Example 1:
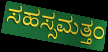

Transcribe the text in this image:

ಸಹಸ್ಸಮತ್ತಂ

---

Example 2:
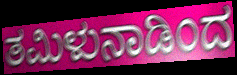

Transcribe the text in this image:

ತಮಿಳುನಾಡಿಂದ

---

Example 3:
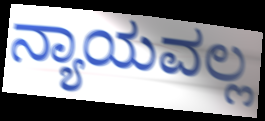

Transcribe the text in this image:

ನ್ಯಾಯವಲ್ಲ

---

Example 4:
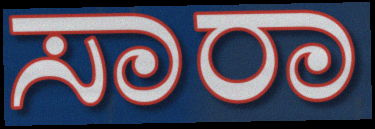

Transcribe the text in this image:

ಸಾರಾ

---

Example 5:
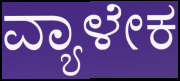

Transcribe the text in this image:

ವ್ಯಾಳೇಕ